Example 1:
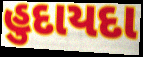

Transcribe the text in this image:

હુદાયદા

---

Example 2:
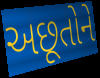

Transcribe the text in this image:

અછૂતોને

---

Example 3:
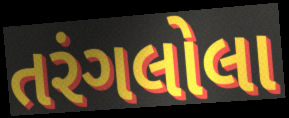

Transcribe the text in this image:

તરંગલોલા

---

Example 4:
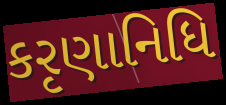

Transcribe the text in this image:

કરૃણાનિધિ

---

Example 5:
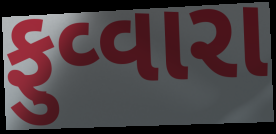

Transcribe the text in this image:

ફુવ્વારા